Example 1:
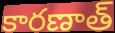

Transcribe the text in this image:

కారణాత్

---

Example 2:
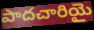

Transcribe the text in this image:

పాదచారియై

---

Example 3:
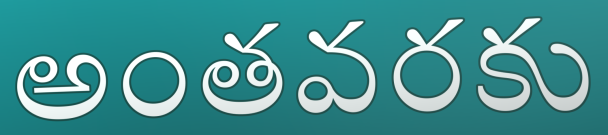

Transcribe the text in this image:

అంతవరకు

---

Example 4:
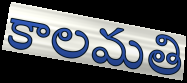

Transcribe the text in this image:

కాలమతి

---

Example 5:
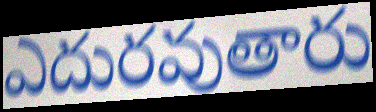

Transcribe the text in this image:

ఎదురవుతారు